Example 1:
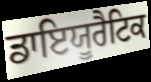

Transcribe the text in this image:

ਡਾਇਯੂਰੈਟਿਕ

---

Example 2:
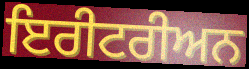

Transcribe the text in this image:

ਇਰੀਟਰੀਅਨ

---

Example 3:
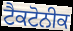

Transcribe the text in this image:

ਟੈਕਟੋਨੀਕ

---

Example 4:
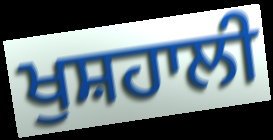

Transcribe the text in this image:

ਖੁਸ਼ਹਾਲੀ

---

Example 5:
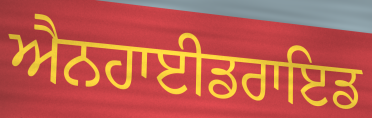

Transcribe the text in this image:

ਐਨਹਾਈਡਰਾਇਡ